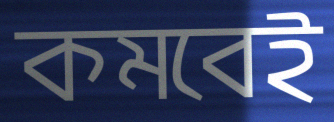
কমবেই